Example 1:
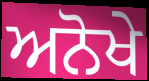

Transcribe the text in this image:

ਅਨੋਖੇ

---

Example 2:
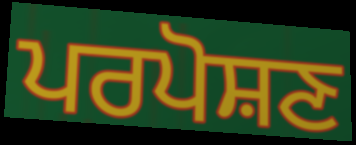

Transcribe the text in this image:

ਪਰਪੋਸ਼ਣ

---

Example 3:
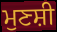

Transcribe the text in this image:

ਮੁਣਸ਼ੀ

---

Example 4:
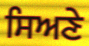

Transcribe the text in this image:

ਸਿਅਣੇ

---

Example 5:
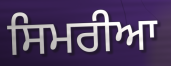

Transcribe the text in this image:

ਸਿਮਰੀਆ